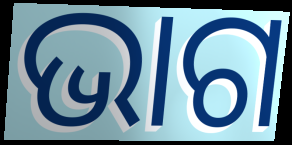
ଭାଗ